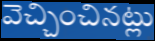
వెచ్చించినట్లు